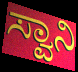
ಸ್ವಾನಿ